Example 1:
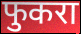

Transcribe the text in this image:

फुकरा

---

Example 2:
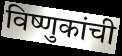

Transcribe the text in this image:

विष्णुकांची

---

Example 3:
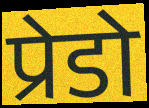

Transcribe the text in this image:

प्रेडो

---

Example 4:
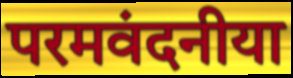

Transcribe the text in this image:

परमवंदनीया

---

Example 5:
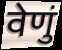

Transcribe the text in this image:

वेणुं